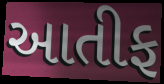
આતીફ